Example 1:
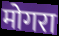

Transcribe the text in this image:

मोगरा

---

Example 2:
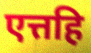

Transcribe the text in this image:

एत्तहि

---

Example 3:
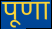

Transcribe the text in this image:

पूणा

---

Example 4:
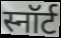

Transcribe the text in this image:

स्नॉर्ट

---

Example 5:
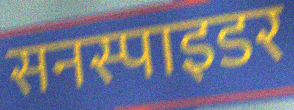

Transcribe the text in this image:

सनस्पाइडर